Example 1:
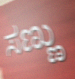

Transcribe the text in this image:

ಸಣ್ಣು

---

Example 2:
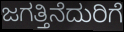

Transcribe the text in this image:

ಜಗತ್ತಿನೆದುರಿಗೆ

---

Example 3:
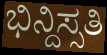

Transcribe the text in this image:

ಭಿನ್ದಿಸ್ಸತಿ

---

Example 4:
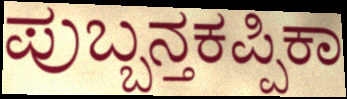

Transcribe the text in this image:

ಪುಬ್ಬನ್ತಕಪ್ಪಿಕಾ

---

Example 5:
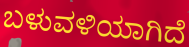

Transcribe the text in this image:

ಬಳುವಳಿಯಾಗಿದೆ